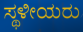
ಸ್ಥಳೀಯರು